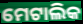
ମେଟାଲିକ